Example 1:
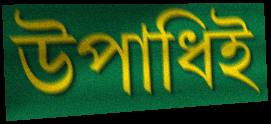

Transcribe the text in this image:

উপাধিই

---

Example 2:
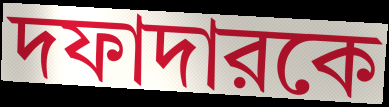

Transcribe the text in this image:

দফাদারকে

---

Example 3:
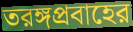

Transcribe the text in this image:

তরঙ্গপ্রবাহের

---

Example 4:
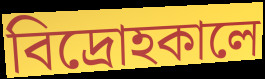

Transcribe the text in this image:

বিদ্রোহকালে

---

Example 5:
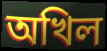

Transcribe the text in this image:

অখিল